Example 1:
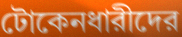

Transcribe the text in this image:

টোকেনধারীদের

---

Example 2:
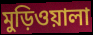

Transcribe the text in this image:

মুড়িওয়ালা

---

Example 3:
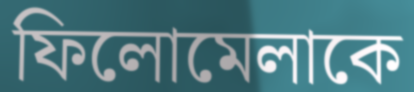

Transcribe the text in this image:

ফিলোমেলাকে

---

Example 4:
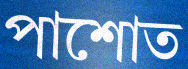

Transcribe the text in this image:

পাশোত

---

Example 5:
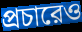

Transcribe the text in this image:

প্রচারেও